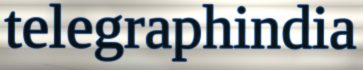
telegraphindia